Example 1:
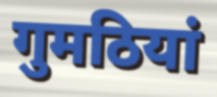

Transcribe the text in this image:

गुमठियां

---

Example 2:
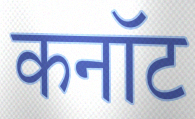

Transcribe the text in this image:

कनॉट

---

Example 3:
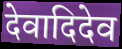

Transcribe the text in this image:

देवादिदेव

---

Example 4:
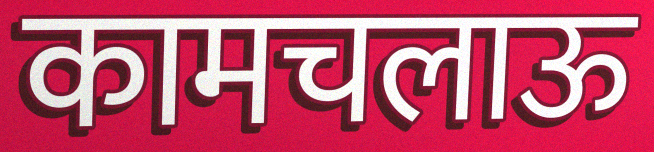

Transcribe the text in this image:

कामचलाऊ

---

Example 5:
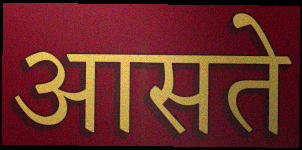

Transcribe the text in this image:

आसते